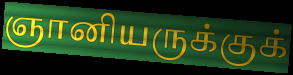
ஞானியருக்குக்